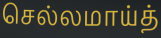
செல்லமாய்த்